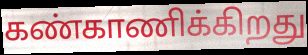
கண்காணிக்கிறது